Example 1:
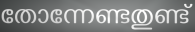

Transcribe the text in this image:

തോന്നേണ്ടതുണ്ട്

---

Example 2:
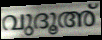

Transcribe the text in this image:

വുദൂഅ്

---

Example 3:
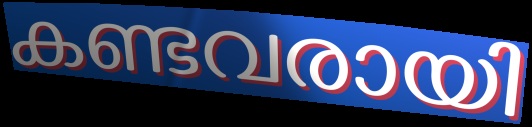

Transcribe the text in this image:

കണ്ടവരായി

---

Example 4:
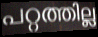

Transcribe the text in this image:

പറ്റത്തില്ല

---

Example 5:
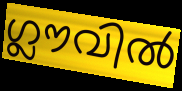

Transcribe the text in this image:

ഗ്ലൗവിൽ